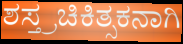
ಶಸ್ತ್ರಚಿಕಿತ್ಸಕನಾಗಿ